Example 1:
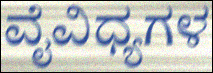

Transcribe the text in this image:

ವೈವಿಧ್ಯಗಳ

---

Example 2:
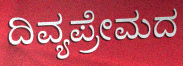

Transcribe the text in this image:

ದಿವ್ಯಪ್ರೇಮದ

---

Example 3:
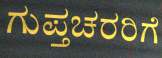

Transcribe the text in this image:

ಗುಪ್ತಚರರಿಗೆ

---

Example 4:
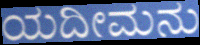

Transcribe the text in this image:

ಯದೀಮನು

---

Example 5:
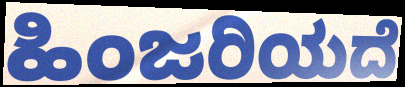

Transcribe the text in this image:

ಹಿಂಜರಿಯದೆ